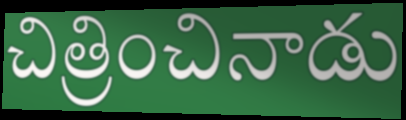
చిత్రించినాడు